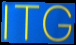
ITG